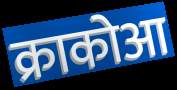
क्राकोआ